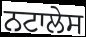
ਨਟਾਲੇਸ